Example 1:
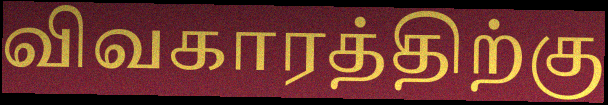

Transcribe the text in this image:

விவகாரத்திற்கு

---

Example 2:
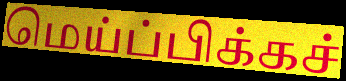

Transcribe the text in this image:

மெய்ப்பிக்கச்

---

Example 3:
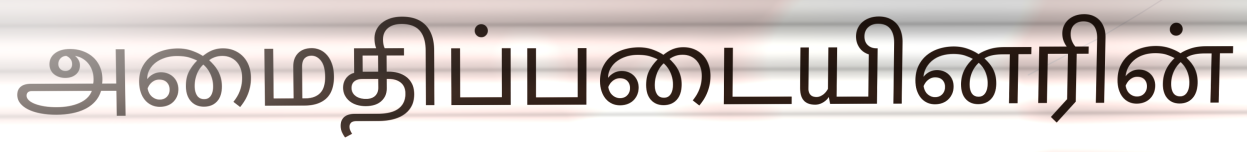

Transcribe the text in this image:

அமைதிப்படையினரின்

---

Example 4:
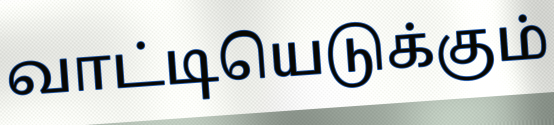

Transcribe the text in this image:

வாட்டியெடுக்கும்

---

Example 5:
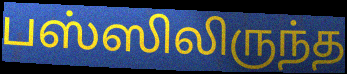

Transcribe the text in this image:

பஸ்ஸிலிருந்த